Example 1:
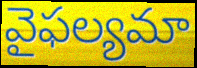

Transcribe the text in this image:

వైఫల్యమా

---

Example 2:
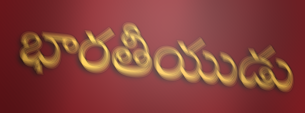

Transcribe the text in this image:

భారతీయుడు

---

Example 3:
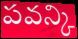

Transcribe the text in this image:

పవన్కి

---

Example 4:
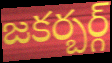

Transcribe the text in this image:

జకర్బర్గ్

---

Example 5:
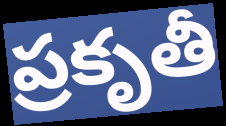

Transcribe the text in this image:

ప్రకృతీ